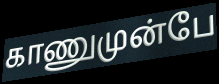
காணுமுன்பே